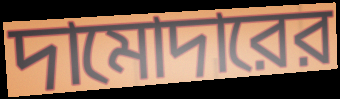
দামোদারের